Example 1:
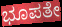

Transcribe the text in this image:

ಭೂಪತೇ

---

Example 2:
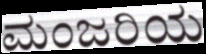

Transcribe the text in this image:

ಮಂಜರಿಯ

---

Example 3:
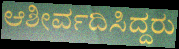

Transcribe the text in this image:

ಆಶೀರ್ವದಿಸಿದ್ದರು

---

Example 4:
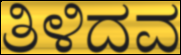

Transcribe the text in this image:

ತಿಳಿದವ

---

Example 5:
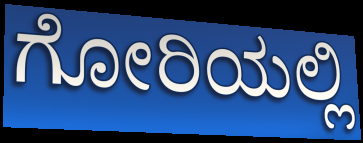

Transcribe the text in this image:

ಗೋರಿಯಲ್ಲಿ